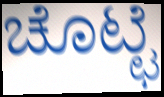
ಚೊಟ್ಟೆ